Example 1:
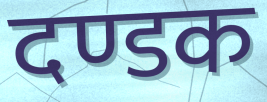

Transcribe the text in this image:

दण्डक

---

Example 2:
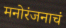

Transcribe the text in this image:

मनोरंजनाचं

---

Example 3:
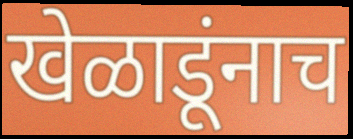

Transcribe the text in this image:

खेळाडूंनाच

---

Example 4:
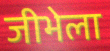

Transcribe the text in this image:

जीभेला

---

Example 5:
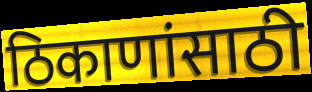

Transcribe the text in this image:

ठिकाणांसाठी